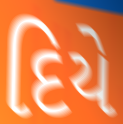
દિયે